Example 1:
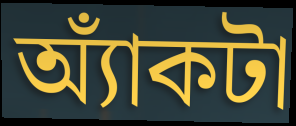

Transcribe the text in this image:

অ্যাঁকটা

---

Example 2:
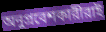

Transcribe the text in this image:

অনুপ্রবেশকারীরাই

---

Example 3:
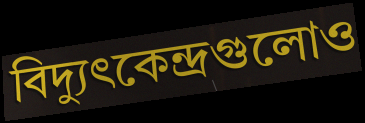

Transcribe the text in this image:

বিদ্যুৎকেন্দ্রগুলোও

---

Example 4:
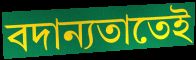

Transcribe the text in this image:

বদান্যতাতেই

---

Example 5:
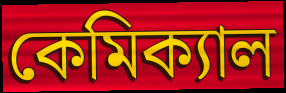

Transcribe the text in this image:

কেমিক্যাল